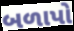
બળાપો